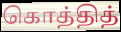
கொத்தித்